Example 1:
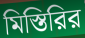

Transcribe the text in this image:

মিস্তিরির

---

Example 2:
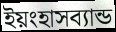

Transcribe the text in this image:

ইয়ংহাসব্যান্ড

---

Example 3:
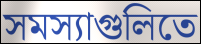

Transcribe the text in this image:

সমস্যাগুলিতে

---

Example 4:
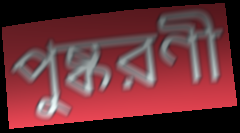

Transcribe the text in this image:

পুষ্করণী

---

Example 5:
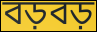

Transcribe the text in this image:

বড়বড়